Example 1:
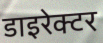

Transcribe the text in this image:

डाइरेक्टर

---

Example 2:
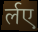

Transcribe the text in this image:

र्लए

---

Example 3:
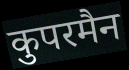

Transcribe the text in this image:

कुपरमैन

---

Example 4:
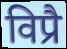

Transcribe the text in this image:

विप्रै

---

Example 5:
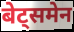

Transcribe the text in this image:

बेट्समेन